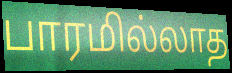
பாரமில்லாத